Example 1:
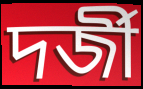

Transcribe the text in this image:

দৰ্জী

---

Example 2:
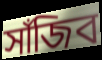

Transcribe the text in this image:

সাঁজিব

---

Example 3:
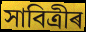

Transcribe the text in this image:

সাবিত্ৰীৰ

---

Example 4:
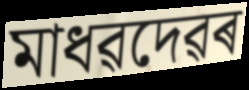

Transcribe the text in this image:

মাধৱদেৱৰ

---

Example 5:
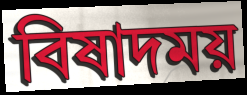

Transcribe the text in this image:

বিষাদময়